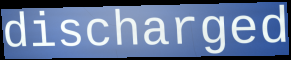
discharged